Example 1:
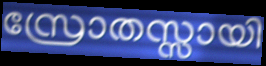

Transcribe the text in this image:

സ്രോതസ്സായി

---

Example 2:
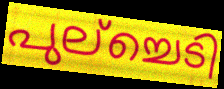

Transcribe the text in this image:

പുല്ച്ചെടി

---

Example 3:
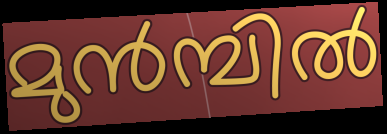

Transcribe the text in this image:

മുൻമ്പിൽ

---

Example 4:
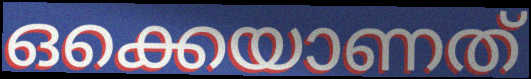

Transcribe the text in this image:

ഒക്കെയാണത്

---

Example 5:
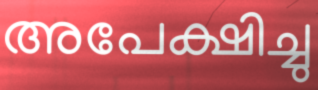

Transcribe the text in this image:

അപേക്ഷിച്ചു